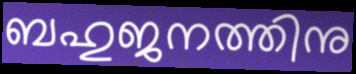
ബഹുജനത്തിനു